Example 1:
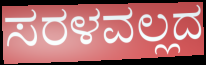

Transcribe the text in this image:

ಸರಳವಲ್ಲದ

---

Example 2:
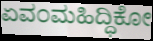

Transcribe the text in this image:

ಏವಂಮಹಿದ್ಧಿಕೋ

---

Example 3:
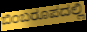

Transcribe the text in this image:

ಬಿಂಬರೂಪದಲ್ಲಿ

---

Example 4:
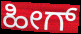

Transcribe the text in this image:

ಹೀಗ್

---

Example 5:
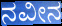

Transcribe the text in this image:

ನವೀನ